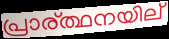
പ്രാര്ത്ഥനയില്